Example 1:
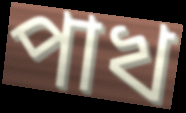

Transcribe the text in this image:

পাখ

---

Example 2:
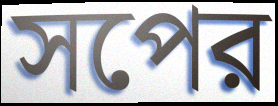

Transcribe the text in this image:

সপের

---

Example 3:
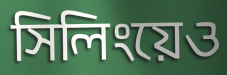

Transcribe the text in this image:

সিলিংয়েও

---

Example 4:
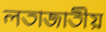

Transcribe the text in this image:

লতাজাতীয়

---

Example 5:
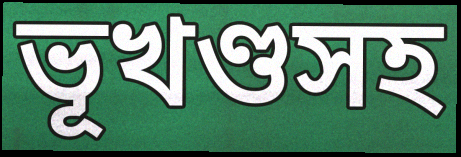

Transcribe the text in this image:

ভূখণ্ডসহ